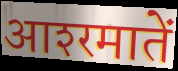
आश्रमातें